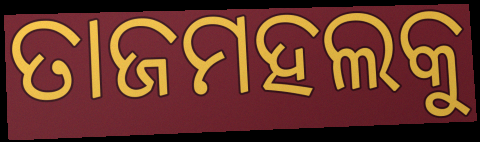
ତାଜମହଲକୁ